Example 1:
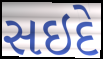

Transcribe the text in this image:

સઇદે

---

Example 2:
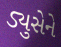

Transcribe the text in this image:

ડ્યુસેને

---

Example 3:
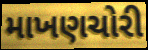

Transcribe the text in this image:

માખણચોરી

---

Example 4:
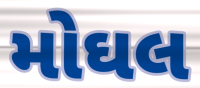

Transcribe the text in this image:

મોઘલ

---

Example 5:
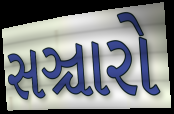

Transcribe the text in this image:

સઞ્ચારો